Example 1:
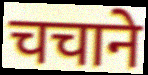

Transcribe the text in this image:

चचाने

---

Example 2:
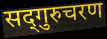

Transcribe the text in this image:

सद्‍गुरुचरण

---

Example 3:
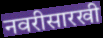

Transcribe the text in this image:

नवरीसारखी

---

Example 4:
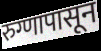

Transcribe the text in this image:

रुग्णापासून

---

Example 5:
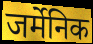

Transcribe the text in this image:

जर्मेनिक